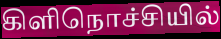
கிளிநொச்சியில்